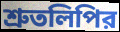
শ্রুতলিপির